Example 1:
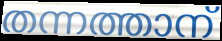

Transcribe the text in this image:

തന്നത്താന്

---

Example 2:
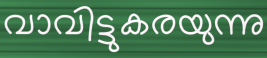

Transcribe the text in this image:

വാവിട്ടുകരയുന്നു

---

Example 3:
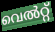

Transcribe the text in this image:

വെൽറ്റ്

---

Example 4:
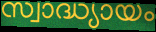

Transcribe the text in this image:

സ്വാദ്ധ്യായം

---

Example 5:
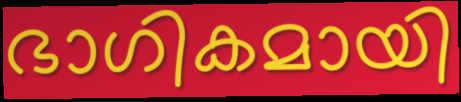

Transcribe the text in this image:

ഭാഗികമായി